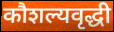
कौशल्यवृद्धी